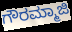
ಗೌರಮ್ಮಾಜಿ